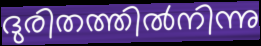
ദുരിതത്തിൽനിന്നു